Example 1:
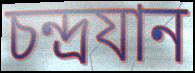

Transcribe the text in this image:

চন্দ্ৰযান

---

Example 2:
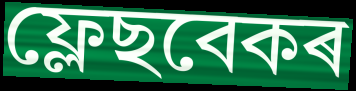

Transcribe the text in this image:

ফ্লেছবেকৰ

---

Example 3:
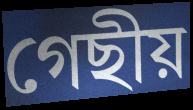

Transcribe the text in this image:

গেছীয়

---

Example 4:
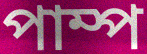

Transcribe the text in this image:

পাম্প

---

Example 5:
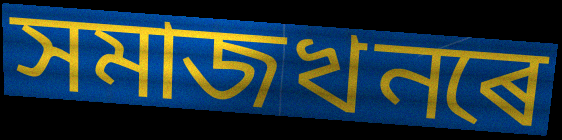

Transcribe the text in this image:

সমাজখনৰে